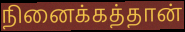
நினைக்கத்தான்